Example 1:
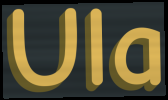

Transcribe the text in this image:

Ula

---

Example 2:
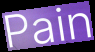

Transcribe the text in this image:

Pain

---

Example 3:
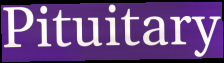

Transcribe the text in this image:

Pituitary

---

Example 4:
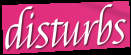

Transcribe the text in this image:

disturbs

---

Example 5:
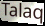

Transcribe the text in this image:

Talaq